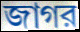
জাগর